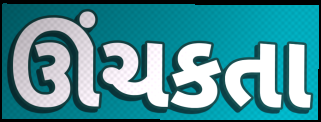
ઊંચકતા